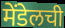
मेंडेलची